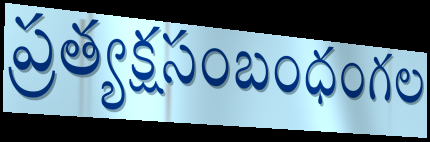
ప్రత్యక్షసంబంధంగల